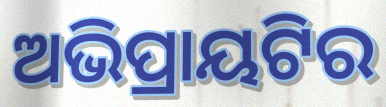
ଅଭିପ୍ରାୟଟିର